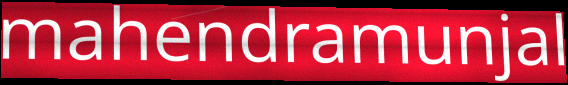
mahendramunjal